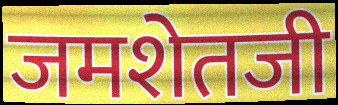
जमशेतजी